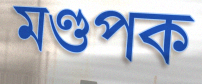
মণ্ডপক